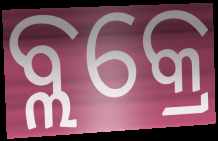
ବ୍ଲକ୍ରେ